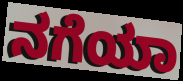
ನಗೆಯಾ